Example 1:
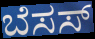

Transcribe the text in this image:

ಬೆಸಸ್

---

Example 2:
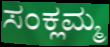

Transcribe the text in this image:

ಸಂಕ್ಲಮ್ಮ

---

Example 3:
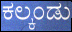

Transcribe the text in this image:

ಕಲ್ಕಂಡು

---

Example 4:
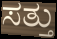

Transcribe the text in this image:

ಸತ್ತು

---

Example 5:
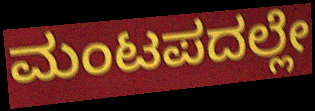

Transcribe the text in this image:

ಮಂಟಪದಲ್ಲೇ